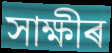
সাক্ষীৰ